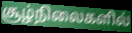
சூழ்நிலைகளில்